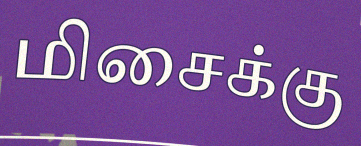
மிசைக்கு